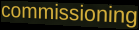
commissioning